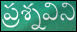
ప్రశ్నవిని